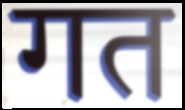
गत